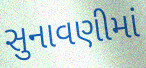
સુનાવણીમાં